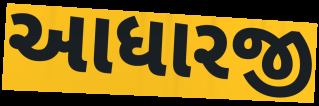
આધારજી